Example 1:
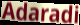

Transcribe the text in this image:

Adaradi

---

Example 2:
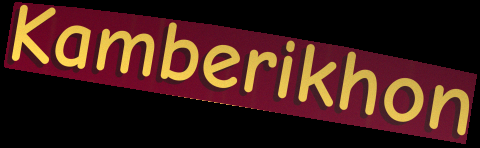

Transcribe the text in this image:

Kamberikhon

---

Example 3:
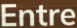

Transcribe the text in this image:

Entre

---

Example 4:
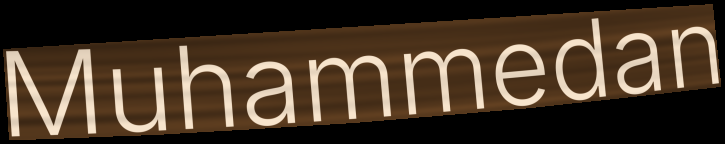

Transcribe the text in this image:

Muhammedan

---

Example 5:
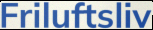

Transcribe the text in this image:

Friluftsliv